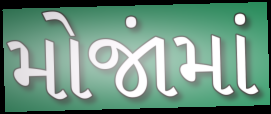
મોજાંમાં